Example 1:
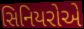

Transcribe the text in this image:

સિનિયરોએ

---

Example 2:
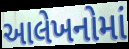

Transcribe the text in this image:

આલેખનોમાં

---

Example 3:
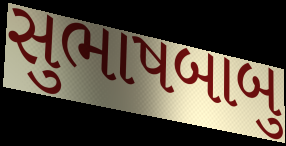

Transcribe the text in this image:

સુભાષબાબુ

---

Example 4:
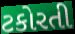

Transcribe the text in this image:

ટકોરતી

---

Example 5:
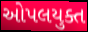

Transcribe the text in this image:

ઓપલયુક્ત